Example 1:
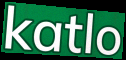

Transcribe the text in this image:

katlo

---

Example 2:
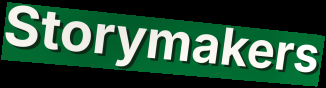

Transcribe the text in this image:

Storymakers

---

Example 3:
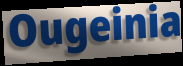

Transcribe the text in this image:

Ougeinia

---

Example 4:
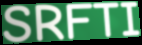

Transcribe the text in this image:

SRFTI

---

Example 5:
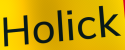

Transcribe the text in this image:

Holick